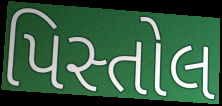
પિસ્તોલ